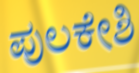
ಪುಲಕೇಶಿ